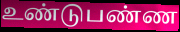
உண்டுபண்ண